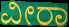
ವೀರಾ